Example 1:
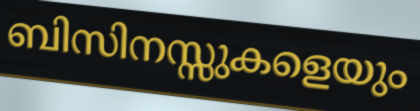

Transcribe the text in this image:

ബിസിനസ്സുകളെയും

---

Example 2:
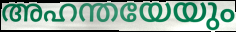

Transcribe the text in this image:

അഹന്തയേയും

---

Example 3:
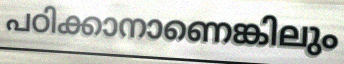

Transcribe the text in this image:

പഠിക്കാനാണെങ്കിലും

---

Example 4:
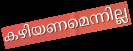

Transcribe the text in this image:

കഴിയണമെന്നില്ല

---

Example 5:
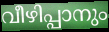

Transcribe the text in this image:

വീഴിപ്പാനും